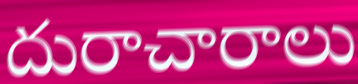
దురాచారాలు